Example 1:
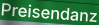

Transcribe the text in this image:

Preisendanz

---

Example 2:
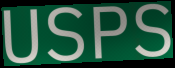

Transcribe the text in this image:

USPS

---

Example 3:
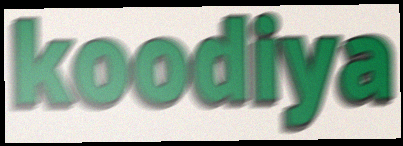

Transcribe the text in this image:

koodiya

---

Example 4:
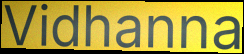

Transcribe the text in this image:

Vidhanna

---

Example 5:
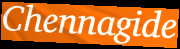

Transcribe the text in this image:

Chennagide